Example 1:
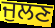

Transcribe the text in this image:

ਜੁਲਣ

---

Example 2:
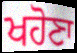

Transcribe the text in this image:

ਖਹੋਣਾ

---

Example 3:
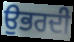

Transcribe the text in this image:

ਉਭਰਦੀ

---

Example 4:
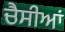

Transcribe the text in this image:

ਚੈਸੀਆਂ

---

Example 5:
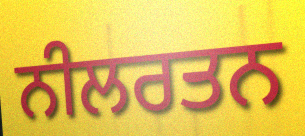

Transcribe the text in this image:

ਨੀਲਰਤਨ